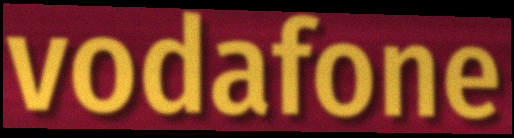
vodafone